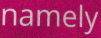
namely